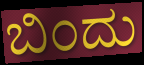
ಬಿಂದು